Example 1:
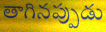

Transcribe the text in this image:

తాగినప్పుడు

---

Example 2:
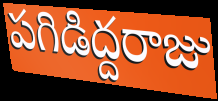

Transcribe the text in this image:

పగిడిద్దరాజు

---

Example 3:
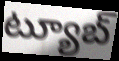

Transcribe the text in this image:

ట్యూబ్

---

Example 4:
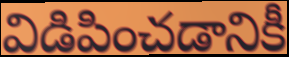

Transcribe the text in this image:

విడిపించడానికీ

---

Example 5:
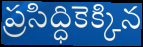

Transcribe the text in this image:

ప్రసిద్ధికెక్కిన